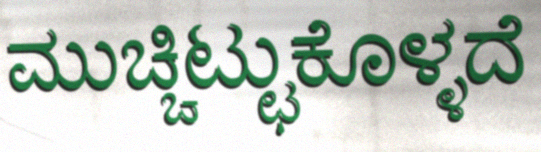
ಮುಚ್ಚಿಟ್ಟುಕೊಳ್ಳದೆ